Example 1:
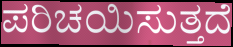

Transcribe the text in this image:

ಪರಿಚಯಿಸುತ್ತದೆ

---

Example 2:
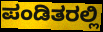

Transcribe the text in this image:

ಪಂಡಿತರಲ್ಲಿ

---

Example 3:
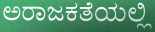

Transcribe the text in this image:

ಅರಾಜಕತೆಯಲ್ಲಿ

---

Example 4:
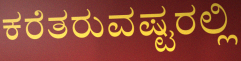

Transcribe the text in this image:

ಕರೆತರುವಷ್ಟರಲ್ಲಿ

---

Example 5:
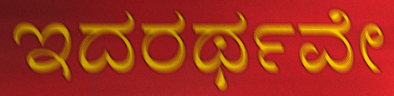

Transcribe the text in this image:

ಇದರರ್ಥವೇ